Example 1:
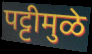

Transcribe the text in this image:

पट्टीमुळे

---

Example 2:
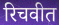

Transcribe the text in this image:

रिचवीत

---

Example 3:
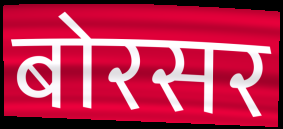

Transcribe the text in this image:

बोरसर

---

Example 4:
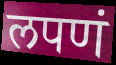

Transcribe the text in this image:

लपणं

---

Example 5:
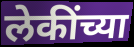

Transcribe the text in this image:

लेकींच्या